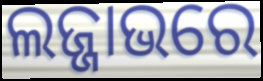
ଲଜ୍ଜାଭରେ